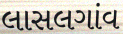
લાસલગાંવ